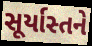
સૂર્યાસ્તને